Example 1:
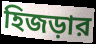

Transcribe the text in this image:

হিজড়ার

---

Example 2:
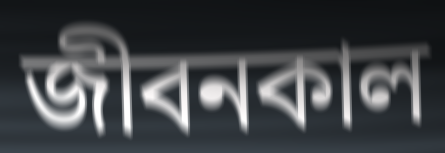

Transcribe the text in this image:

জীবনকাল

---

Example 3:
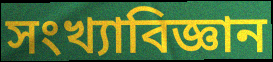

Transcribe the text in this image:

সংখ্যাবিজ্ঞান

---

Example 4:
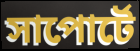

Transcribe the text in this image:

সাপোর্টে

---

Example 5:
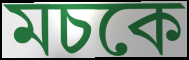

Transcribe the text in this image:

মচকে